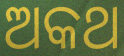
ଅକଥ